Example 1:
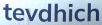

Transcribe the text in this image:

tevdhich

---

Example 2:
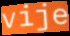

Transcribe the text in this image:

vije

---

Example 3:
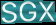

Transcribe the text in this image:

SGX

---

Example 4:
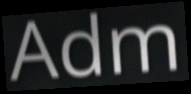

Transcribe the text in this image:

Adm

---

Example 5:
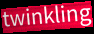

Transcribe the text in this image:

twinkling